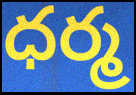
ధర్మ